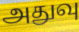
அதுவு